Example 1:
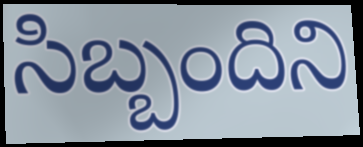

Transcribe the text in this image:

సిబ్బందిని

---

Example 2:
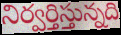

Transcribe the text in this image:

నిర్వర్తిస్తున్నది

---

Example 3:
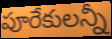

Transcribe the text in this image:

పూరేకులన్నీ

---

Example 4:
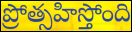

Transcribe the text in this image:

ప్రోత్సహిస్తోంది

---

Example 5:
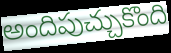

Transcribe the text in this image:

అందిపుచ్చుకొంది